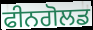
ਫੀਨਗੋਲਡ